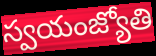
స్వయంజ్యోతి